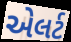
એલર્ટ